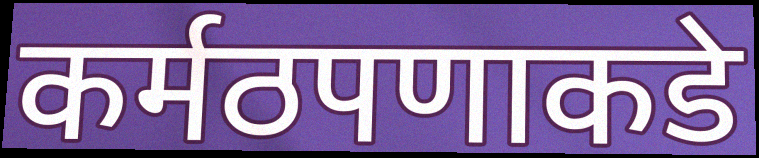
कर्मठपणाकडे